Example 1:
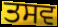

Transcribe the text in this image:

ਤਸਵ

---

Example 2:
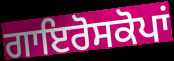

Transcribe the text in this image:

ਗਾਇਰੋਸਕੋਪਾਂ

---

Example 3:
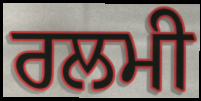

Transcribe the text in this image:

ਰਲਮੀ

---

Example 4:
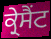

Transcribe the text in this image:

ਕ੍ਰੇਸੈਂਟ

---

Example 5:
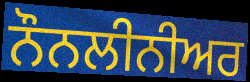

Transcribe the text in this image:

ਨੌਨਲੀਨੀਅਰ